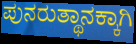
ಪುನರುತ್ಥಾನಕ್ಕಾಗಿ